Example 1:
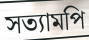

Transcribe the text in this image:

সত্যামপি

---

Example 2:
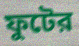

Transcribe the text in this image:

ফুটের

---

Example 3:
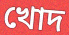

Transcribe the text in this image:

খোদ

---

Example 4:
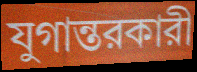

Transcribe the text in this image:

যুগান্তরকারী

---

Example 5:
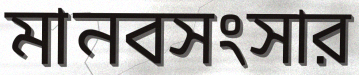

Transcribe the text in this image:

মানবসংসার